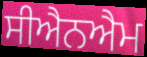
ਸੀਐਨਐਮ